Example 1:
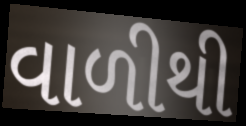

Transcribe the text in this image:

વાળીથી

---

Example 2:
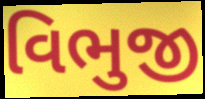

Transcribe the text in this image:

વિભુજી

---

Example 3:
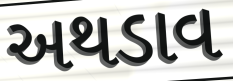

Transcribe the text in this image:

અથડાવ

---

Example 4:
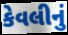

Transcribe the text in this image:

કેવલીનું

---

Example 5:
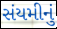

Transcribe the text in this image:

સંયમીનું